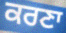
ਕਰਣਾ